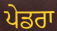
ਪੇਡਰਾ